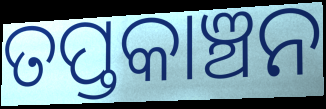
ତପ୍ତକାଞ୍ଚନ